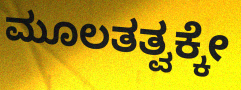
ಮೂಲತತ್ವಕ್ಕೇ